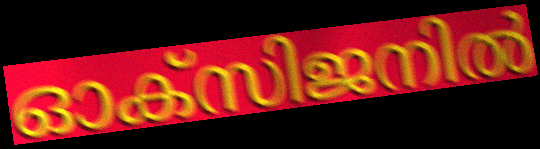
ഓക്സിജനിൽ